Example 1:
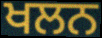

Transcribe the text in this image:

ਖਲਨ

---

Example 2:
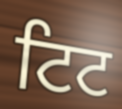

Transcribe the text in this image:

ਟਿਟ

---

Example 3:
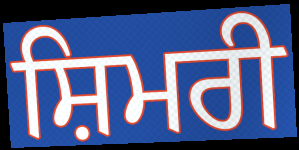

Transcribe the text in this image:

ਸ਼ਿਮਰੀ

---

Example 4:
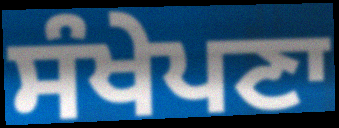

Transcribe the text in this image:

ਸੰਖੇਪਣਾ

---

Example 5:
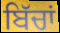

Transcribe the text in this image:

ਬਿੱਚਾਂ